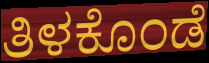
ತಿಳಕೊಂಡೆ